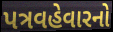
પત્રવહેવારનો